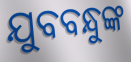
ଯୁବବନ୍ଧୁଙ୍କ